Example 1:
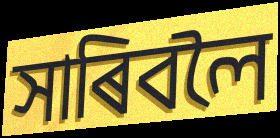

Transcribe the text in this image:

সাৰিবলৈ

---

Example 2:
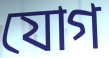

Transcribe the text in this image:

যোগ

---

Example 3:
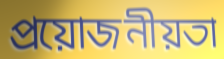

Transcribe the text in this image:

প্ৰয়োজনীয়তা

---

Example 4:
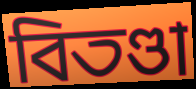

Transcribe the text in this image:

বিতণ্ডা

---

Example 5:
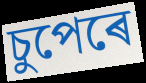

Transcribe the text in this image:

চুপেৰে